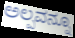
ಅಲ್ಪವನ್ನೂ